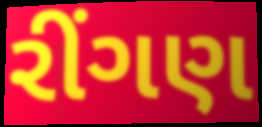
રીંગણ